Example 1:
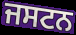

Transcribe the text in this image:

ਜਸਟਨ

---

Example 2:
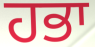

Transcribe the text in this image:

ਹਭਾ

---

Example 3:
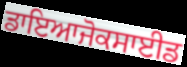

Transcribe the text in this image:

ਡਾਇਆਜੋਕਸਾਈਡ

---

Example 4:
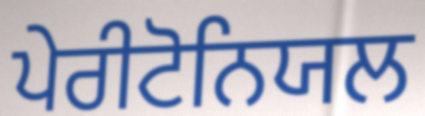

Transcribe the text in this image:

ਪੇਰੀਟੋਨਿਯਲ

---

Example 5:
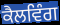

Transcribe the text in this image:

ਕੈਲਵਿੰਗ